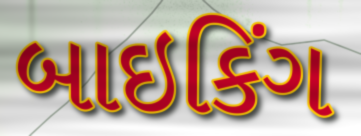
બાઇકિંગ